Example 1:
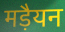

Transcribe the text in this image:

मड़ैयन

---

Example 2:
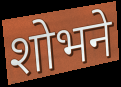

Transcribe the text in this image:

शोभने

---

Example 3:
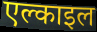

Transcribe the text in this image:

एल्काइल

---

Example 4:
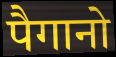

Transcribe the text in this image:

पैगानो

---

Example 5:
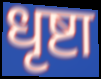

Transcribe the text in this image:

धृष्टा